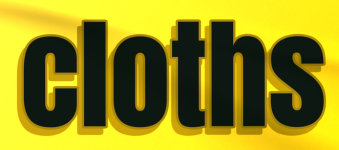
cloths